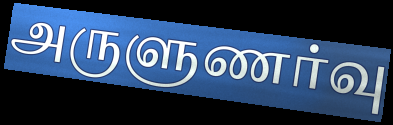
அருளுணர்வு